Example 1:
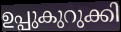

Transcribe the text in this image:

ഉപ്പുകുറുക്കി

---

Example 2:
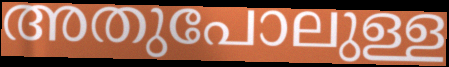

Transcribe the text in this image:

അതുപോലുള്ള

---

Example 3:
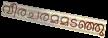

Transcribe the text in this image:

വീരചരമമടഞ്ഞു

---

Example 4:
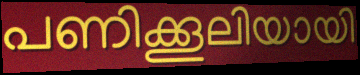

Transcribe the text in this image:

പണിക്കൂലിയായി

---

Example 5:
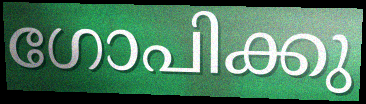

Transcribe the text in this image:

ഗോപിക്കു